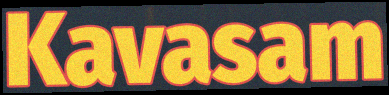
Kavasam